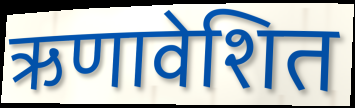
ऋणावेशित